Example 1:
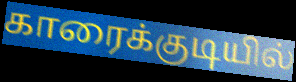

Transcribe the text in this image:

காரைக்குடியில்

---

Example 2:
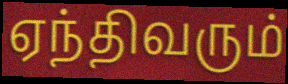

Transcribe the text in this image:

ஏந்திவரும்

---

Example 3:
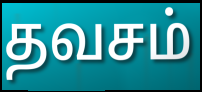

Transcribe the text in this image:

தவசம்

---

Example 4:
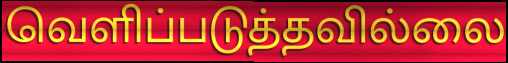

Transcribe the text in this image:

வெளிப்படுத்தவில்லை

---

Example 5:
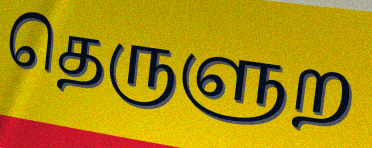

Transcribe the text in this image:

தெருளுற